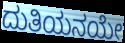
ದುತಿಯನಯೇ